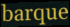
barque